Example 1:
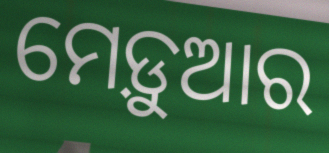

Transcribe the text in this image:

ମେଡ଼ୁଆର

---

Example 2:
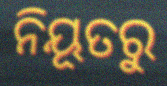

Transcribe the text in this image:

ନିୟୂତରୁ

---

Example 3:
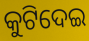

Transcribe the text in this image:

କୁଟିଦେଇ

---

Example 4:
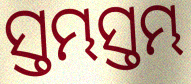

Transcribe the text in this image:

ସ୍ତମ୍ଭସ୍ତମ୍ଭ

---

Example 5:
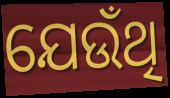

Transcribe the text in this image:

ଯେଉଁଥି